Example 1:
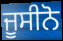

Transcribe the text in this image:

ਜੂਸੀਨੋ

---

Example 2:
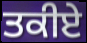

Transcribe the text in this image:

ਤਕੀਏ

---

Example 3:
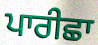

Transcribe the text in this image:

ਪਾਰੀਛਾ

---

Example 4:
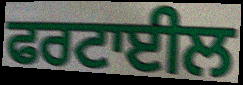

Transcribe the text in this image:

ਫਰਟਾਈਲ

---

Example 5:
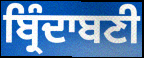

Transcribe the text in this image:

ਬ੍ਰਿੰਦਾਬਣੀ